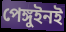
পেঙ্গুইনই